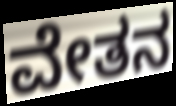
ವೇತನ